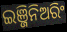
ଇଞ୍ଜିନିଅରିଂ